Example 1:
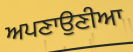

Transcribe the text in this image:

ਅਪਣਾਉਣੀਆ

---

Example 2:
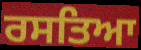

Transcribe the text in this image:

ਰਸਤਿਆ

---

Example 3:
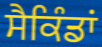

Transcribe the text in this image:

ਸੈਕਿੰਡਾਂ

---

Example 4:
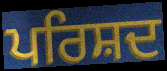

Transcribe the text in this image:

ਪਰਿਸ਼ਦ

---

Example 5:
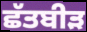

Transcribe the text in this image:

ਛੱਤਬੀੜ